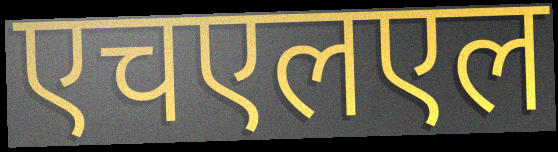
एचएलएल